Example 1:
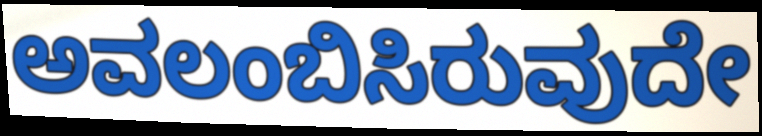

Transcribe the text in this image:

ಅವಲಂಬಿಸಿರುವುದೇ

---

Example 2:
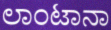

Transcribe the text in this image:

ಲಾಂಟಾನಾ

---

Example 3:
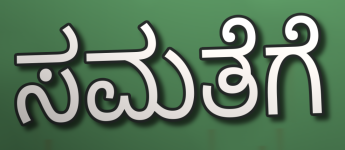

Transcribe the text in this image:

ಸಮತೆಗೆ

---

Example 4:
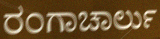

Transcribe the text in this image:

ರಂಗಾಚಾರ್ಲು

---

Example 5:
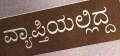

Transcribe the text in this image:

ವ್ಯಾಪ್ತಿಯಲ್ಲಿದ್ದ